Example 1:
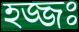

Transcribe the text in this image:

হজ্জঃ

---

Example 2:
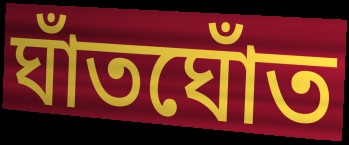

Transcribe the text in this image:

ঘাঁতঘোঁত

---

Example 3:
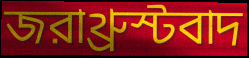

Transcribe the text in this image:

জরাথ্রুস্টবাদ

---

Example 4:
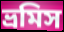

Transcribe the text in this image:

ভ্রমিস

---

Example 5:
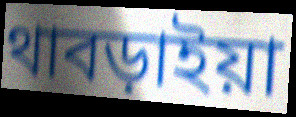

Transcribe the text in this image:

থাবড়াইয়া